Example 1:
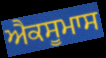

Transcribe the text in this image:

ਐਕਸੂਮਾਸ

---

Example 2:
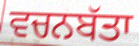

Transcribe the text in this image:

ਵਚਨਬੱਤਾ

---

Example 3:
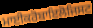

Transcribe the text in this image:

ਮਾਈਕਰੋਬਾਇਲੋਜਿਸਟ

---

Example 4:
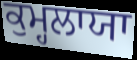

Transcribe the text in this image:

ਕੁਮ੍ਹਲਾਯਾ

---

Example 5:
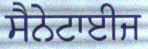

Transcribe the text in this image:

ਸੈਨੇਟਾਈਜ